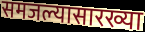
समजल्यासारख्या